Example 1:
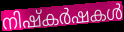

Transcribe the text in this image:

നിഷ്കർഷകൾ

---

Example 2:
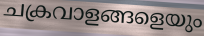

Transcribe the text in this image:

ചക്രവാളങ്ങളെയും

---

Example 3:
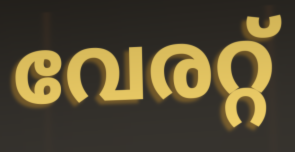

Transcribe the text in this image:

വേരറ്റ്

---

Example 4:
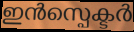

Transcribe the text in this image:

ഇൻസ്പെക്ടർ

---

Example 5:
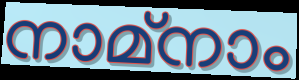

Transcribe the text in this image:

നാമ്നാം